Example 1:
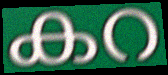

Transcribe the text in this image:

കറ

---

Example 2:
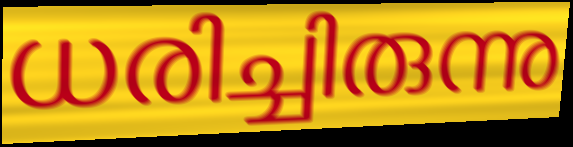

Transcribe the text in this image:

ധരിച്ചിരുന്നു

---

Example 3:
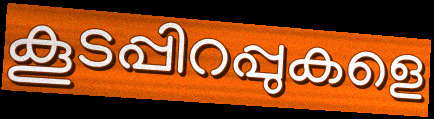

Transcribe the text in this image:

കൂടപ്പിറപ്പുകളെ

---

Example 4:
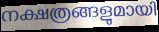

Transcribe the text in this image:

നക്ഷത്രങ്ങളുമായി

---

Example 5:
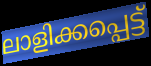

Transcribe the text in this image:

ലാളിക്കപ്പെട്ട്